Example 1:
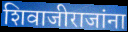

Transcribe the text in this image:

शिवाजीराजांना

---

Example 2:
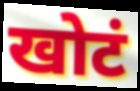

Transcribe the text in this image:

खोटं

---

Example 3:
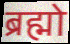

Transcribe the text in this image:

ब्रह्मो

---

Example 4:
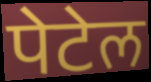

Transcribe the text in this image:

पेटेल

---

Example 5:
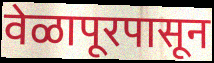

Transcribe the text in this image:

वेळापूरपासून